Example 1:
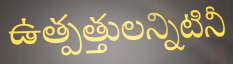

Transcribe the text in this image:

ఉత్పత్తులన్నిటినీ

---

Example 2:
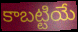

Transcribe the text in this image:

కాబట్టియే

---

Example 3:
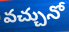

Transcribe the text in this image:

వచ్చునో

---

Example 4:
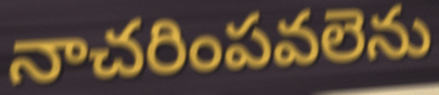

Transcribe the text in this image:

నాచరింపవలెను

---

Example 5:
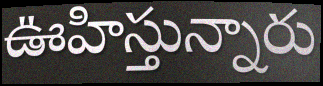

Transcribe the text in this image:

ఊహిస్తున్నారు